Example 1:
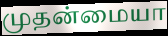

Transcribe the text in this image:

முதன்மையா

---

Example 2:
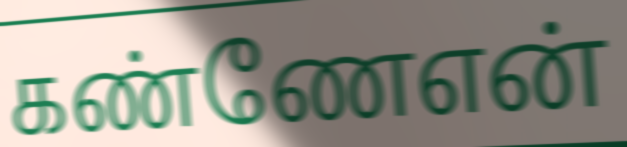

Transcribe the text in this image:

கண்ணேஎன்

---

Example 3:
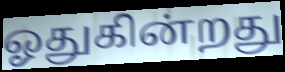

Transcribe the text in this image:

ஓதுகின்றது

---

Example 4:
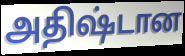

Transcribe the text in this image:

அதிஷ்டான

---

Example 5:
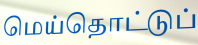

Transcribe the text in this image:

மெய்தொட்டுப்